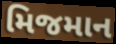
મિજમાન